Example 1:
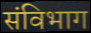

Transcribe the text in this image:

संविभाग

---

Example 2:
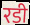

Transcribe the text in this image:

रडी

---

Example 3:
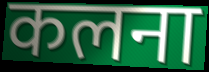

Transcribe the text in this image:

कलना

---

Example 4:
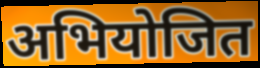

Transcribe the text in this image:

अभियोजित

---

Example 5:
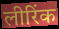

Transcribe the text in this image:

लीरिंक